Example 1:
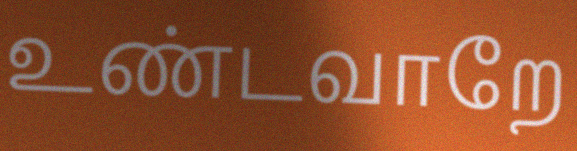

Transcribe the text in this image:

உண்டவாறே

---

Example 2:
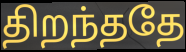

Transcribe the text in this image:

திறந்ததே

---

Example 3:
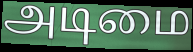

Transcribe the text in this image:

அடிமை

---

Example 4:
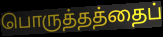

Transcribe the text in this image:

பொருத்தத்தைப்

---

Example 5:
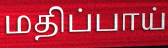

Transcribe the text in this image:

மதிப்பாய்